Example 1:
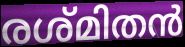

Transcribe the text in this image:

രശ്മിതൻ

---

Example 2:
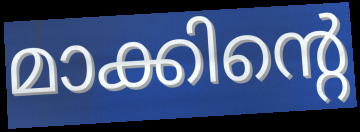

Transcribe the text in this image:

മാക്കിന്റെ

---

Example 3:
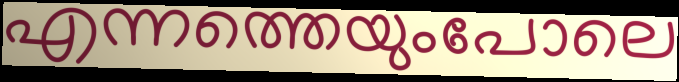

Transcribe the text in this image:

എന്നത്തെയുംപോലെ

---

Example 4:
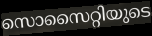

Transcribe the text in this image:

സൊസൈറ്റിയുടെ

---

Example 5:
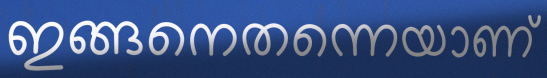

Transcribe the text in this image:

ഇങ്ങനെതന്നെയാണ്